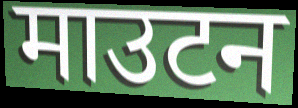
माउटन